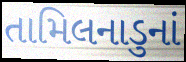
તામિલનાડુનાં